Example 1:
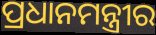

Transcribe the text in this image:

ପ୍ରଧାନମନ୍ତ୍ରୀର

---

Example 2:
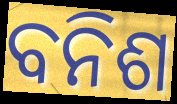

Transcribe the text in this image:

ବନିଶ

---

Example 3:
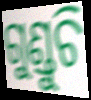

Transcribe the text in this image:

ଗୁଣ୍ଡୁଚି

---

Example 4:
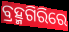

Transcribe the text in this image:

ବ୍ରହ୍ମଗିରିରେ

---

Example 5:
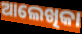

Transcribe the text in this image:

ଆଲେଖିକା